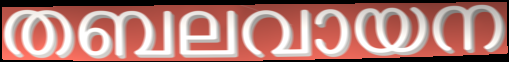
തബലവായന